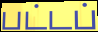
பட்டப்